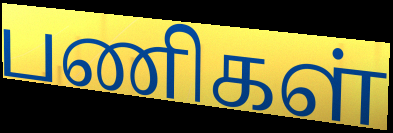
பணிகள்